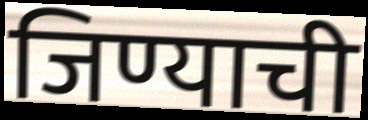
जिण्याची